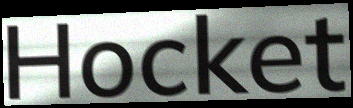
Hocket